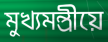
মুখ্যমন্ত্ৰীয়ে